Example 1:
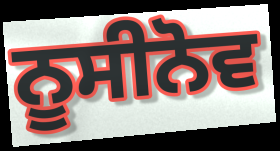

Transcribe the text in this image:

ਨੂਸੀਨੋਵ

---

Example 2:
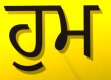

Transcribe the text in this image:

ਹੁਮ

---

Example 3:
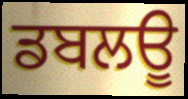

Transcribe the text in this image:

ਡਬਲਊ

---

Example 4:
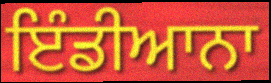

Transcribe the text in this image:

ਇੰਡੀਆਨਾ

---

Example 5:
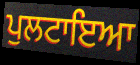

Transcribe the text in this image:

ਪੁਲਟਾਇਆ